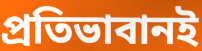
প্রতিভাবানই